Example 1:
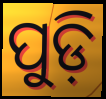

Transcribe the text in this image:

ପୁଡ଼ି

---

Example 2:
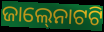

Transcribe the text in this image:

ଜାଲ୍‍ନୋଟଟି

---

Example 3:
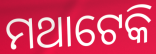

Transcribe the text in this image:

ମଥାଟେକି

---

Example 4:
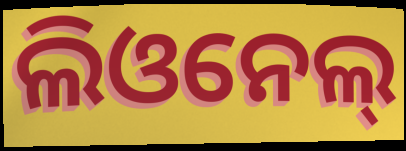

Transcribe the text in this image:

ଲିଓନେଲ୍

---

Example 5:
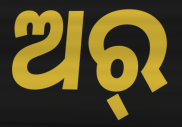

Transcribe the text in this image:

ଅର୍